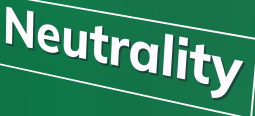
Neutrality